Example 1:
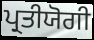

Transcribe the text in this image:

ਪ੍ਰਤੀਯੋਗੀ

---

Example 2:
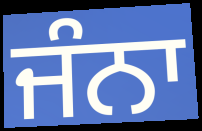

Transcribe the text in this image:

ਜੰਨਾ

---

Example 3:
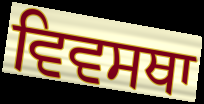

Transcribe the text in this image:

ਵਿਵਸਥਾ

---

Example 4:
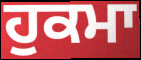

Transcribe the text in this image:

ਹੁਕਮਾ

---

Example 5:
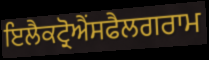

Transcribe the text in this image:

ਇਲੈਕਟ੍ਰੋਐਂਸਫੈਲਗਰਾਮ